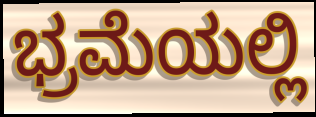
ಭ್ರಮೆಯಲ್ಲಿ